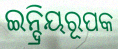
ଇନ୍ଦ୍ରିୟରୂପକ